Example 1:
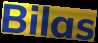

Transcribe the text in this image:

Bilas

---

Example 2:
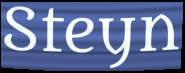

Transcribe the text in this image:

Steyn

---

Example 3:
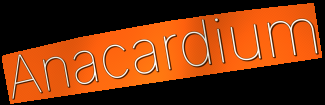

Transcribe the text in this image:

Anacardium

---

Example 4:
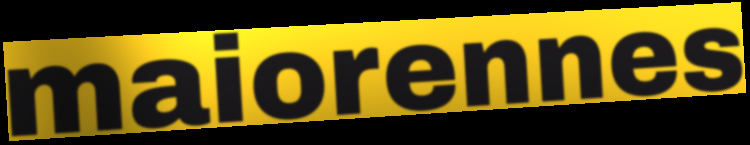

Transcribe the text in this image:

maiorennes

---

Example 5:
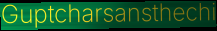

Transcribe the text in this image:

Guptcharsansthechi